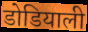
डोडियाली